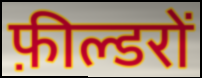
फ़ील्डरों